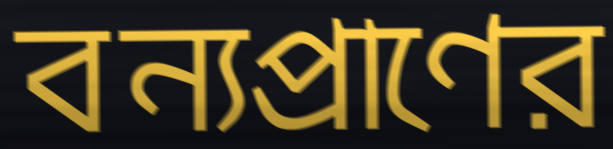
বন্যপ্রাণের